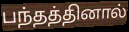
பந்தத்தினால்